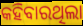
କହିବାରଥିଲା